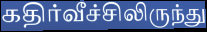
கதிர்வீச்சிலிருந்து